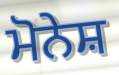
ਮੋਨੇਸ਼